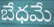
బేధమే